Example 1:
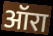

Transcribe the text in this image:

ऑरा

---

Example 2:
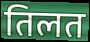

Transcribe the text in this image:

तिलत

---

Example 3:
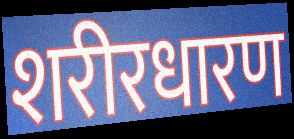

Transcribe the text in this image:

शरीरधारण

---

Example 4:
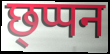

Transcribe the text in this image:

छ्प्पन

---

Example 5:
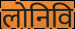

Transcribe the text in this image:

लोनिवि